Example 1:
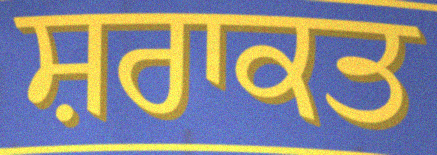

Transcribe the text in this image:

ਸ਼ਰਾਕਤ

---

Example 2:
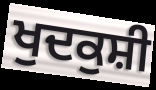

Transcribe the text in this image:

ਖੁਦਕੁਸ਼ੀ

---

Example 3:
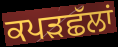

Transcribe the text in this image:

ਕਪੜਛੱਲਾਂ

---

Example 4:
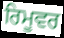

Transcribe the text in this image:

ਰਿਮੂਵਰ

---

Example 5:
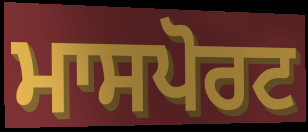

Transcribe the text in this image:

ਮਾਸਪੋਰਟ